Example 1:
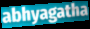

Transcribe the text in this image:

abhyagatha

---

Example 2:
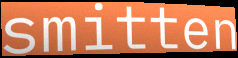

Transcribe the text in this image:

smitten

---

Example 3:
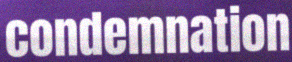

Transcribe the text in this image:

condemnation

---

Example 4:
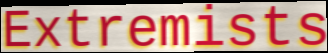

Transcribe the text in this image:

Extremists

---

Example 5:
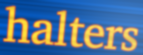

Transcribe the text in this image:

halters